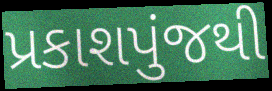
પ્રકાશપુંજથી